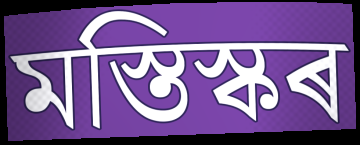
মস্তিস্কৰ